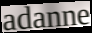
adanne